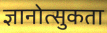
ज्ञानोत्सुकता